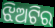
ଝିଅଟିର